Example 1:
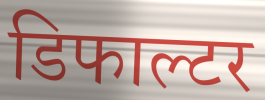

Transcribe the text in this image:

डिफाल्टर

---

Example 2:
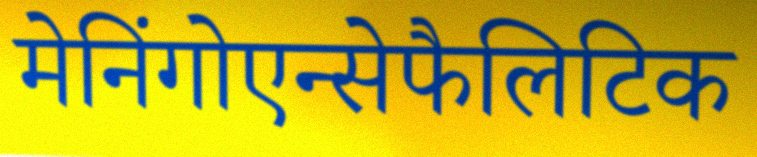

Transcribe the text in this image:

मेनिंगोएन्सेफैलिटिक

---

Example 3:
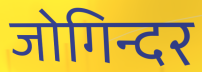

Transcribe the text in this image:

जोगिन्दर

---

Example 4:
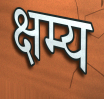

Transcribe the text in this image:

क्षम्य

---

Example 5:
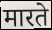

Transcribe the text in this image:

मारते